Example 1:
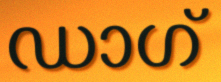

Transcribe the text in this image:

ഡാഗ്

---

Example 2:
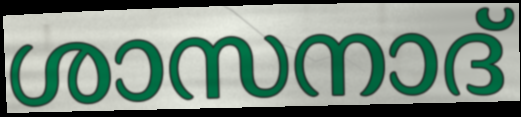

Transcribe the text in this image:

ശാസനാദ്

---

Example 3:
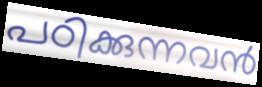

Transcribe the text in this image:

പഠിക്കുന്നവൻ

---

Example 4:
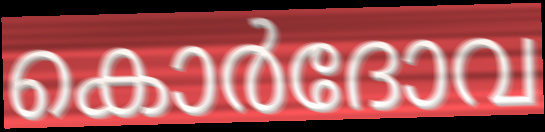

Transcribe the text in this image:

കൊർദോവ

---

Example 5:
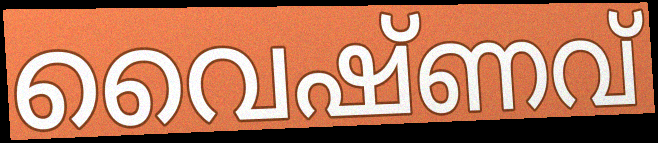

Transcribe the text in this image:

വൈഷ്ണവ്